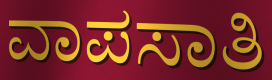
ವಾಪಸಾತಿ